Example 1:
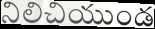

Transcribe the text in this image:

నిలిచియుండ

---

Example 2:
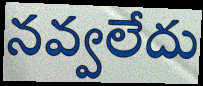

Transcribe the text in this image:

నవ్వలేదు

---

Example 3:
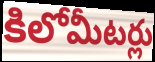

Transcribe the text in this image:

కిలోమీటర్లు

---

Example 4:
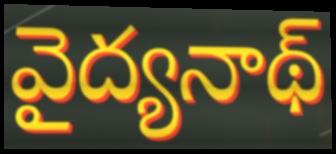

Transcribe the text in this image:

వైద్యనాథ్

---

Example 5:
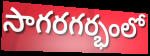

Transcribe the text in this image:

సాగరగర్భంలో